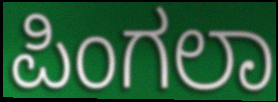
ಪಿಂಗಲಾ